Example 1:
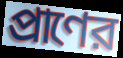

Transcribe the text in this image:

প্রাণের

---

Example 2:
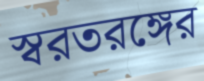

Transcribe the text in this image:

স্বরতরঙ্গের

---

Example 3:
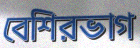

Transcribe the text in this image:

বেশিরভাগ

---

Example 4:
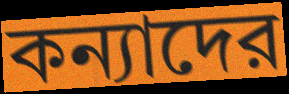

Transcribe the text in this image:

কন্যাদের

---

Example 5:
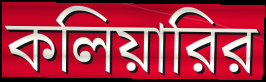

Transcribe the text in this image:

কলিয়ারির